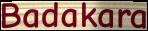
Badakara